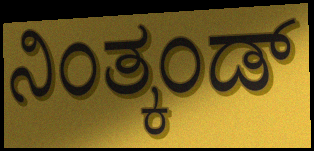
ನಿಂತ್ಕಂಡ್